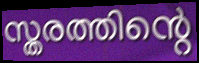
സ്തരത്തിന്റെ